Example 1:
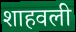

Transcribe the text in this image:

शाहवली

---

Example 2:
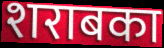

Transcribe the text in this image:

शराबका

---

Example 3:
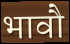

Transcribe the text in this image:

भावौ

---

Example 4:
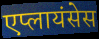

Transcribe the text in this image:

एप्लायंसेस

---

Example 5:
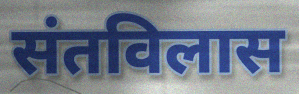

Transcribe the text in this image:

संतविलास